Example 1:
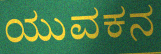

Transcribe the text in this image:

ಯುವಕನ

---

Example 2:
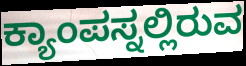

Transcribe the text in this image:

ಕ್ಯಾಂಪಸ್ನಲ್ಲಿರುವ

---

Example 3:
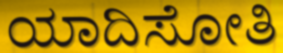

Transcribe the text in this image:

ಯಾದಿಸೋತಿ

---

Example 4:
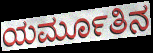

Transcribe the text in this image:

ಯರ್ಮೂತಿನ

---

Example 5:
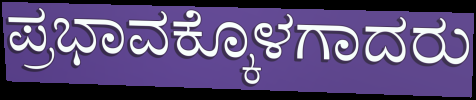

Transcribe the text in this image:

ಪ್ರಭಾವಕ್ಕೊಳಗಾದರು